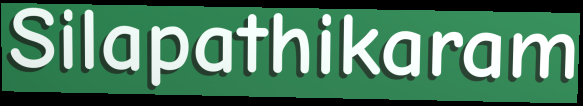
Silapathikaram